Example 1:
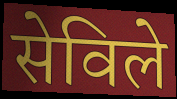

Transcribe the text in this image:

सेविले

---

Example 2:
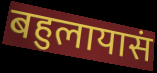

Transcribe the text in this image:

बहुलायासं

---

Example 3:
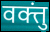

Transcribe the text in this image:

वक्तुं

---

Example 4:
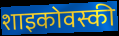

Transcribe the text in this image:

शाइकोवस्की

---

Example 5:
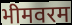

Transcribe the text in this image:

भीमवरम